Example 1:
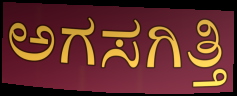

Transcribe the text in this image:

ಅಗಸಗಿತ್ತಿ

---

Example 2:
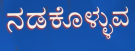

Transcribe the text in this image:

ನಡಕೊಳ್ಳುವ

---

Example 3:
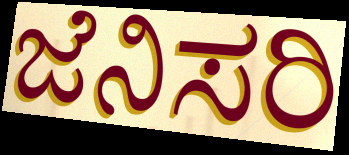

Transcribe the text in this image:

ಜೆನಿಸರಿ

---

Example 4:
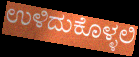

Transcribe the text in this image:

ಉಳಿದುಕೊಳ್ಳಲಿ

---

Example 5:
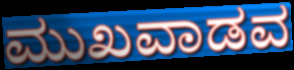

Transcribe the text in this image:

ಮುಖವಾಡವ